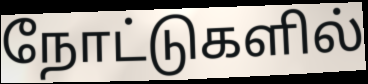
நோட்டுகளில்